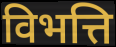
विभत्ति